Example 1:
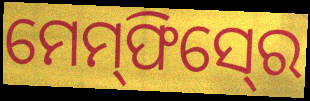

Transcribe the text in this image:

ମେମ୍‍ଫିସ୍‍ରେ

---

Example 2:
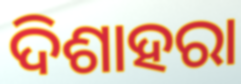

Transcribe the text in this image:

ଦିଶାହରା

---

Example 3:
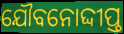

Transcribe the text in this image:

ଯୌବନୋଦ୍ଦୀପ୍ତ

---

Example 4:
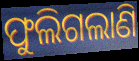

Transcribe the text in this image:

ଫୁଲିଗଲାଣି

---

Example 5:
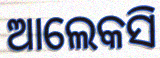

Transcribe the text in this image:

ଆଲେକସି